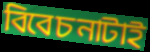
বিবেচনাটাই